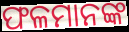
ଫଳମାନଙ୍କ